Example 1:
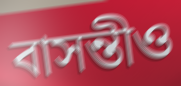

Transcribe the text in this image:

বাসন্তীও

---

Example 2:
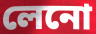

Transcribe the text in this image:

লেনো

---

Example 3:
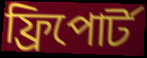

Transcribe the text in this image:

ফ্রিপোর্ট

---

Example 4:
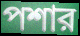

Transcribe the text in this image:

পশার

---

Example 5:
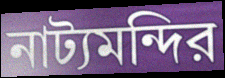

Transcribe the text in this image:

নাট্যমন্দির